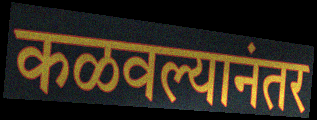
कळवल्यानंतर